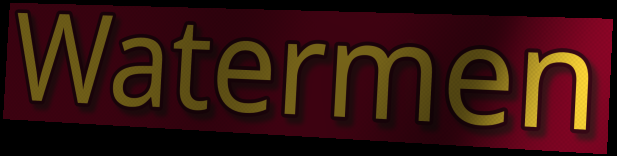
Watermen